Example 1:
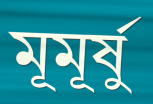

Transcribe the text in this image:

মূমূর্ষু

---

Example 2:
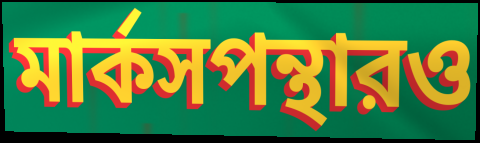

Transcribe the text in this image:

মার্কসপন্থারও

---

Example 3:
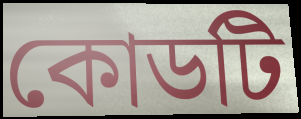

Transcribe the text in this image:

কোডটি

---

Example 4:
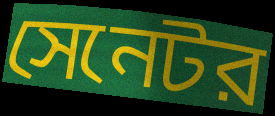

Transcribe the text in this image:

সেনেটর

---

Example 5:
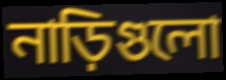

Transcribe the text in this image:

নাড়িগুলো